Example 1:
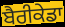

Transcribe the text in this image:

ਬੈਰੀਕੇਡਾ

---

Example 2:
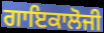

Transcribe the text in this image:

ਗਾਇਕਾਲੋਜੀ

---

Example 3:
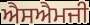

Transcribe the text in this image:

ਐਸਐਮਜੀ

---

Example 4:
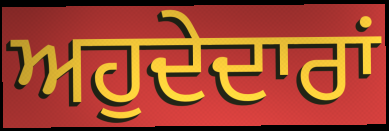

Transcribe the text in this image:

ਅਹੁਦੇਦਾਰਾਂ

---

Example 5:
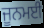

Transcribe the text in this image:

ਜੂਨਮਈ